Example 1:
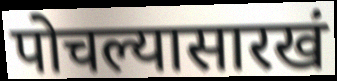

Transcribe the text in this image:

पोचल्यासारखं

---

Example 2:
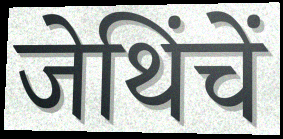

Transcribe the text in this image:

जेथिंचें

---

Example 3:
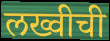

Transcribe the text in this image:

लख्वीची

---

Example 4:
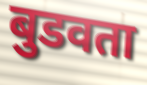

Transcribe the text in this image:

बुडवता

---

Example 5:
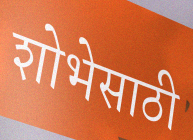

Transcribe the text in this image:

शोभेसाठी